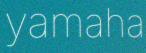
yamaha